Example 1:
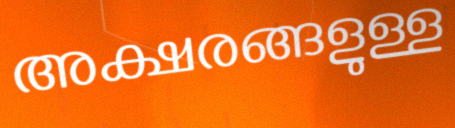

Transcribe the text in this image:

അക്ഷരങ്ങളുള്ള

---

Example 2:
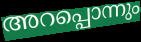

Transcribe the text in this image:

അറപ്പൊന്നും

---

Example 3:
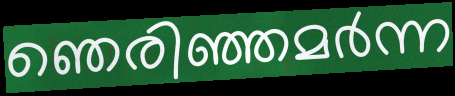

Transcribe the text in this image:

ഞെരിഞ്ഞമർന്ന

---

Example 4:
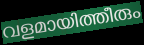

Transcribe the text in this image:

വളമായിത്തീരും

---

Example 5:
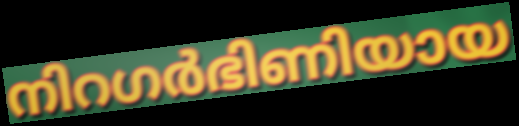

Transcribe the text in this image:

നിറഗർഭിണിയായ